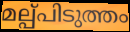
മല്പ്പിടുത്തം